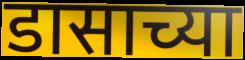
डासाच्या